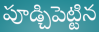
పూడ్చిపెట్టిన